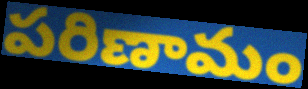
పరిణామం